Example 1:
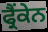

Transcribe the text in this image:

ਫ੍ਰੈਂਕੇਨ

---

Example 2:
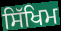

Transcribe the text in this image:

ਸਿੱਖਿਮ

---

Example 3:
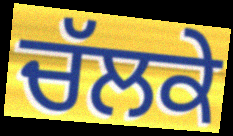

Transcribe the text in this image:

ਚੱਲਕੇ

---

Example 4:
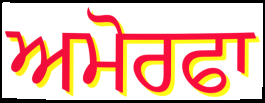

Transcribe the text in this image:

ਅਮੋਰਫਾ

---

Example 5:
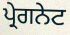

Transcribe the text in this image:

ਪ੍ਰੇਗਨੇਟ